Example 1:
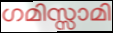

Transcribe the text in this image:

ഗമിസ്സാമി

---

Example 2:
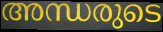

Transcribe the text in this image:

അന്ധരുടെ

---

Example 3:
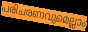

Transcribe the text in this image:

പരിചരണവുമെല്ലാം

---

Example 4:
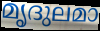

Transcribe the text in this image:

മൃദുലമാ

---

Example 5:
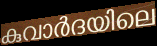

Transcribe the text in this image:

കുവാർദയിലെ